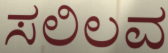
ಸಲಿಲವ